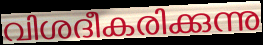
വിശദീകരിക്കുന്നു